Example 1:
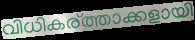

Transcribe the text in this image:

വിധികര്ത്താക്കളായി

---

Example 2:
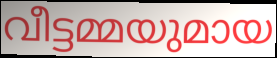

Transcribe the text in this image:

വീട്ടമ്മയുമായ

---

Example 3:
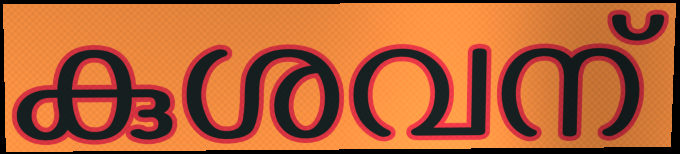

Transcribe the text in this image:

കുശവന്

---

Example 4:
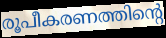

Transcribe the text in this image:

രൂപീകരണത്തിന്റെ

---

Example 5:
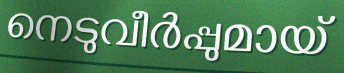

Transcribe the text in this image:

നെടുവീർപ്പുമായ്